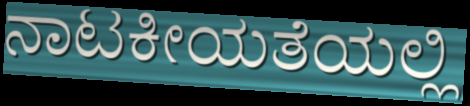
ನಾಟಕೀಯತೆಯಲ್ಲಿ